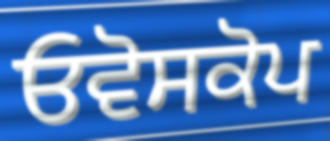
ਓਵੋਸਕੋਪ